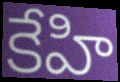
కేహి